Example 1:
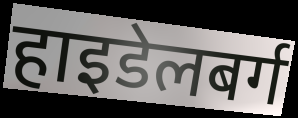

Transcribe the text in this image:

हाइडेलबर्ग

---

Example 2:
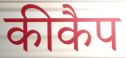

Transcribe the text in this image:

कीकैप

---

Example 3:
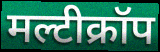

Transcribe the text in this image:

मल्टीक्रॉप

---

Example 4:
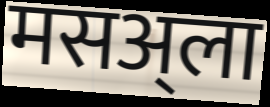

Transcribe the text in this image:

मसअ्ला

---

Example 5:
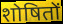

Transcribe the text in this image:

शोषितों